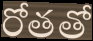
రోతతో